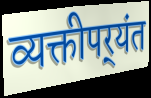
व्यक्तीपर्यंत